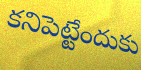
కనిపెట్టేందుకు